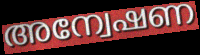
അന്വേഷണ